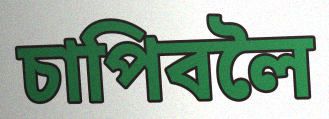
চাপিবলৈ